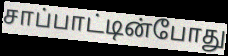
சாப்பாட்டின்போது